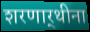
शरणार्थीना